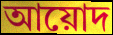
আয়োদ